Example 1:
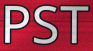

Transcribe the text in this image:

PST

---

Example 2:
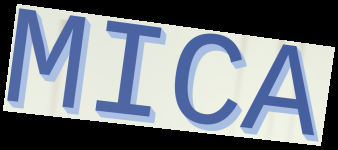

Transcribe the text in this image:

MICA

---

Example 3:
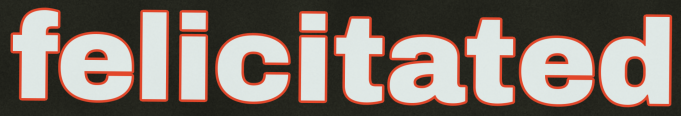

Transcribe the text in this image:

felicitated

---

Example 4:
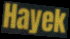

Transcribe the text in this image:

Hayek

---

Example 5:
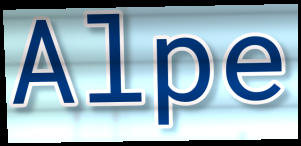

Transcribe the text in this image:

Alpe